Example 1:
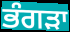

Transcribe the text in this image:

ਭੰਗੜਾ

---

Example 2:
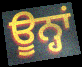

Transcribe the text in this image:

ਊਨ੍ਹਾਂ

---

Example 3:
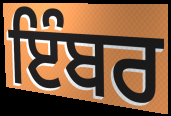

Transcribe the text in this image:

ਇੰਬਰ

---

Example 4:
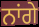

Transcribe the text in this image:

ਨਾਂਗੇ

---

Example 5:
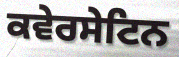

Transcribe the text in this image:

ਕਵੇਰਸੇਟਿਨ